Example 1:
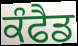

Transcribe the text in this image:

ਕੰਫੈਡ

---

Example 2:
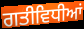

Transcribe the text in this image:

ਗਤੀਵਿਧੀਆਂ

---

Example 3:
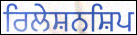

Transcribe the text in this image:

ਰਿਲੇਸ਼ਨਸ਼ਿਪ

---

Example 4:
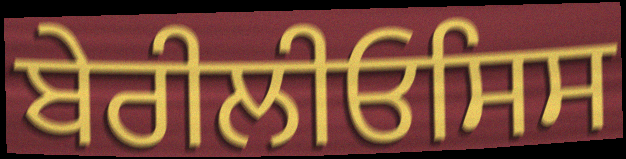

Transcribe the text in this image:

ਬੇਰੀਲੀਓਸਿਸ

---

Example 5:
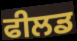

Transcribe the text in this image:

ਫੀਲਡ